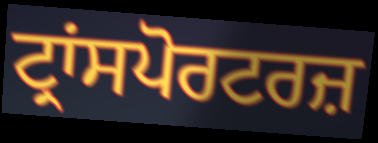
ਟ੍ਰਾਂਸਪੋਰਟਰਜ਼